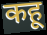
कहू